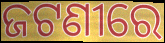
ଜଟଣୀରେ